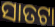
ସାତଟା